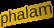
phalam